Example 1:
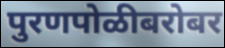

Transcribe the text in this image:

पुरणपोळीबरोबर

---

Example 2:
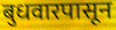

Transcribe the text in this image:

बुधवारपासून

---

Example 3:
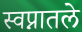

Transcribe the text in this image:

स्वप्नातले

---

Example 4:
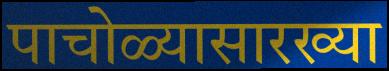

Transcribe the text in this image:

पाचोळ्यासारख्या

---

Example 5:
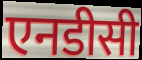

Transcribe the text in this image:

एनडीसी